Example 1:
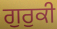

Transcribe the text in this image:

ਗੁਰੁਕੀ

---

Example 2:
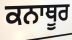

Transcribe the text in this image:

ਕਨਾਥੂਰ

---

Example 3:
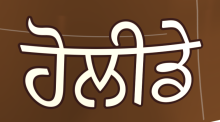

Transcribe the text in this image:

ਹੋਲੀਡੇ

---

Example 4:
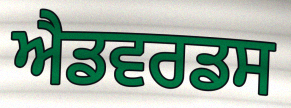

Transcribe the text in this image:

ਐਡਵਰਡਸ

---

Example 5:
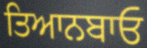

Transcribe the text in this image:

ਤਿਆਨਬਾਓ